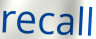
recall